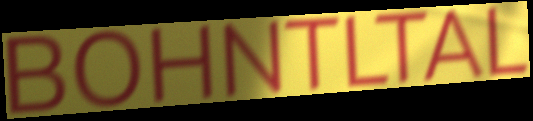
BOHNTLTAL